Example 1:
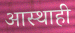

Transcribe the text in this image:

आस्थाही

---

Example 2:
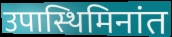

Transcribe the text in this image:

उपास्थिमिनांत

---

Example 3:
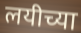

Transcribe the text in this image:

लयीच्या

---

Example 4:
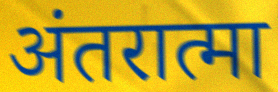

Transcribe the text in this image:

अंतरात्मा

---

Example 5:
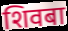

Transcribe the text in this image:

शिवबा